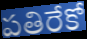
పతిరేకో